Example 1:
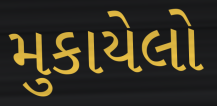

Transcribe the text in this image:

મુકાયેલો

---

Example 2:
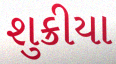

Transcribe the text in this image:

શુક્રીયા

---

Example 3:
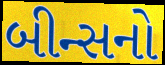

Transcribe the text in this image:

બીન્સનો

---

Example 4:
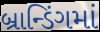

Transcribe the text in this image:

બ્રાન્ડિંગમાં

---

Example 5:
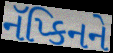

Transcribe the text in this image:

નૅપ્કિનને